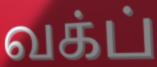
வக்ப்